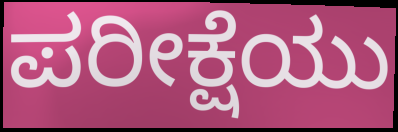
ಪರೀಕ್ಷೆಯು